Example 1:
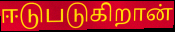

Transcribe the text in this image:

ஈடுபடுகிறான்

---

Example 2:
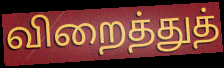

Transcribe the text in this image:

விறைத்துத்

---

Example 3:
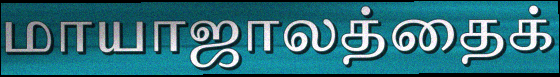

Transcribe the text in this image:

மாயாஜாலத்தைக்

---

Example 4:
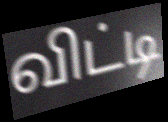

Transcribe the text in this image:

விட்டி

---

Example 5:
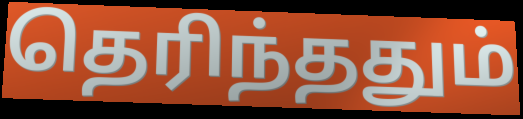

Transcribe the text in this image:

தெரிந்ததும்